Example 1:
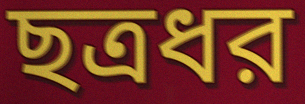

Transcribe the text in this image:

ছত্রধর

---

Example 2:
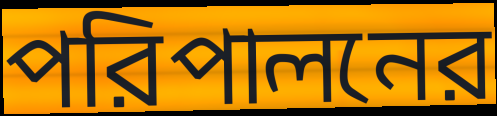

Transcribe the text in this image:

পরিপালনের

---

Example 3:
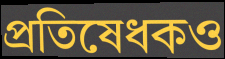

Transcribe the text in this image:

প্রতিষেধকও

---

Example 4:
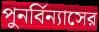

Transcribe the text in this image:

পুনর্বিন্যাসের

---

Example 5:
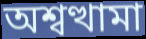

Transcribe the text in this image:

অশ্বত্থামা